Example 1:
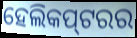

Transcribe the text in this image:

ହେଲିକପ୍‌ଟରର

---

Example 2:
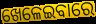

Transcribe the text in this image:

ଖେଳେଇବାରେ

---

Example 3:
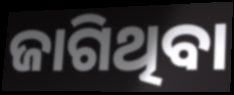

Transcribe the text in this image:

ଜାଗିଥିବା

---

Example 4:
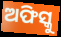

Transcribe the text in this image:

ଅଫିସ୍କୁ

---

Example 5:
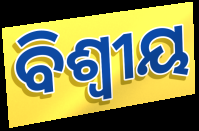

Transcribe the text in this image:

ବିଶ୍ଵୀୟ